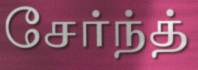
சேர்ந்த்